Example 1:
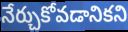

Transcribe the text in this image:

నేర్చుకోవడానికని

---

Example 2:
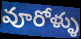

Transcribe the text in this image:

వూరోళ్ళు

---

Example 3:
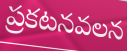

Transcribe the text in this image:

ప్రకటనవలన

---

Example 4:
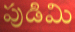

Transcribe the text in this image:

పుడిమి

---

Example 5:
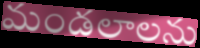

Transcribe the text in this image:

మండలాలను